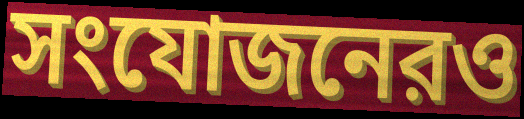
সংযোজনেরও